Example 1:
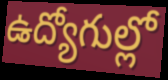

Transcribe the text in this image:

ఉద్యోగుల్లో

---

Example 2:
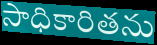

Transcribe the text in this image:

సాధికారితను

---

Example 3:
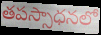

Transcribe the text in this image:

తపస్సాధనలో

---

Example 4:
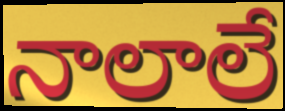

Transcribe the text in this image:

నాలాలే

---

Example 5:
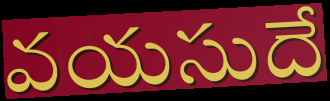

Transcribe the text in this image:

వయసుదే